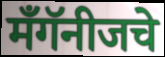
मँगॅनीजचे